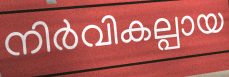
നിർവികല്പായ